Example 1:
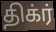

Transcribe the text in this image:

திக்ர்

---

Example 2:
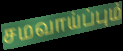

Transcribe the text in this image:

சமவாய்ப்பும்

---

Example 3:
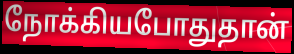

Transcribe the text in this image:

நோக்கியபோதுதான்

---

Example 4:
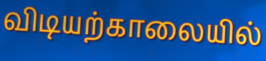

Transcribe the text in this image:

விடியற்காலையில்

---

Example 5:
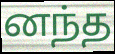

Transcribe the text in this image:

னந்த